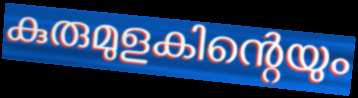
കുരുമുളകിന്റെയും